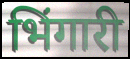
भिंगारी